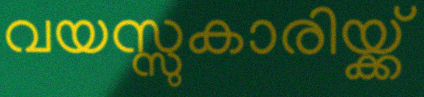
വയസ്സുകാരിയ്ക്ക്